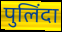
पुलिंदा